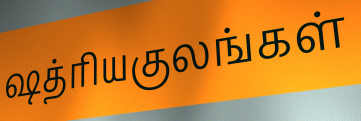
ஷத்ரியகுலங்கள்